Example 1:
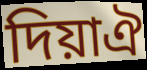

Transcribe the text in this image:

দিয়াঐ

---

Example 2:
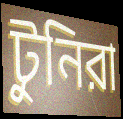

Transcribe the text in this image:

টুনিরা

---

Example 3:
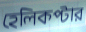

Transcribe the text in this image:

হেলিকপ্টার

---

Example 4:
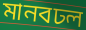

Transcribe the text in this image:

মানবঢল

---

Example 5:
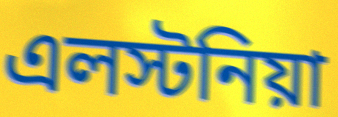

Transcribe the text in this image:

এলস্টনিয়া